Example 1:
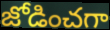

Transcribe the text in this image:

జోడించగా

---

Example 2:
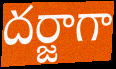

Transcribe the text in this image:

దర్జాగా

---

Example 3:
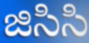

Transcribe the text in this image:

జిసిసి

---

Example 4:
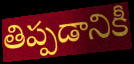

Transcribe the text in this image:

తిప్పడానికీ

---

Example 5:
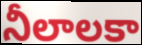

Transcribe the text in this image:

నీలాలకా